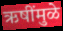
ऋषींमुळे